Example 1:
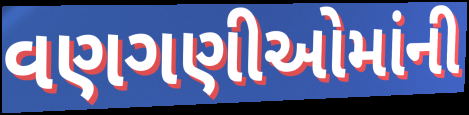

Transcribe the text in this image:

વણગણીઓમાંની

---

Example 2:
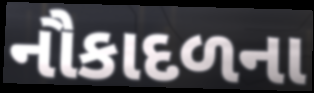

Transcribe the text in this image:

નૌકાદળના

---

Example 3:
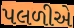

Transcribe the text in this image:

પલળીએ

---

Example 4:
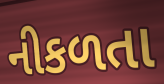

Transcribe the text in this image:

નીકળતા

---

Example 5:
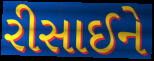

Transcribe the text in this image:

રીસાઈને